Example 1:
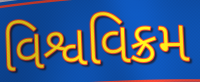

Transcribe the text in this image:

વિશ્વવિક્રમ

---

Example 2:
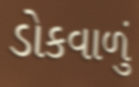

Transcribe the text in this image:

ડોકવાળું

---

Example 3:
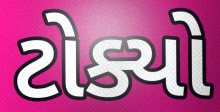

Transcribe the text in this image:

ટોક્યો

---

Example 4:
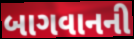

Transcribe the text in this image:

બાગવાનની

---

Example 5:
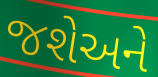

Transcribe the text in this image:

જશેઅને